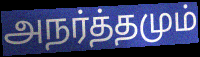
அநர்த்தமும்